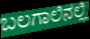
ಬಲಗಾಲಿನಲ್ಲಿ